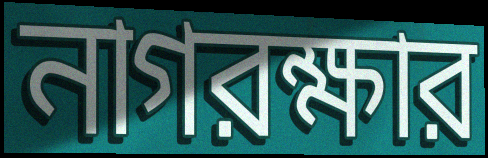
নাগরক্ষার